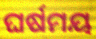
ଘର୍ଷମୟ